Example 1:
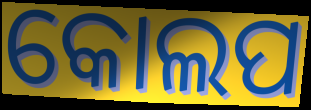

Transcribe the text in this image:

କୋଲପ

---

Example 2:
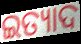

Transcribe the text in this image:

ଇତ୍ୟାଦ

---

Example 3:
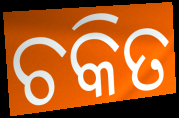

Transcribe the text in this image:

ଚକିତ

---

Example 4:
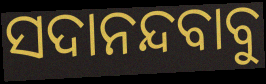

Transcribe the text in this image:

ସଦାନନ୍ଦବାବୁ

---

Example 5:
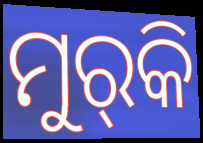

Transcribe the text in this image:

ମୁର୍‌କି